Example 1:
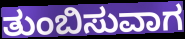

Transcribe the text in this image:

ತುಂಬಿಸುವಾಗ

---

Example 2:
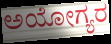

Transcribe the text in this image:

ಅಯೋಗ್ಯರ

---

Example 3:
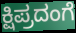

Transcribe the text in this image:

ಕ್ಷಿಪ್ರದಂಗೆ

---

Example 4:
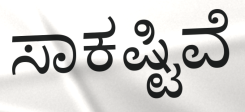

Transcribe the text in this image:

ಸಾಕಷ್ಟಿವೆ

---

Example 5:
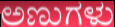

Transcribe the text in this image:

ಅಣುಗಳು